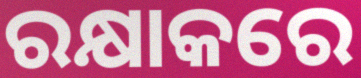
ରକ୍ଷାକରେ